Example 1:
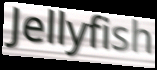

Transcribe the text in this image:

Jellyfish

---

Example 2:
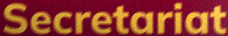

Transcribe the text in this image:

Secretariat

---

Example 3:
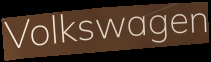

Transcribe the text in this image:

Volkswagen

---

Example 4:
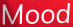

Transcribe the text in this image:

Mood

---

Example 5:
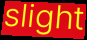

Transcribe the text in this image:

slight